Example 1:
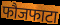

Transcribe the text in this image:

फौजफाटा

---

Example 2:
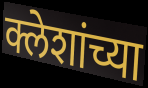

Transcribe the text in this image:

क्लेशांच्या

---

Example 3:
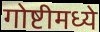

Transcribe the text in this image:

गोष्टीमध्ये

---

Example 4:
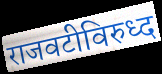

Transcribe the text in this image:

राजवटीविरुध्द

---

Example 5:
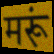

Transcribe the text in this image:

मरूं